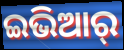
ଇଭିଆର୍